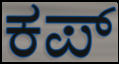
ಕಪ್